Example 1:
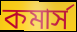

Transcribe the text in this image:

কমার্স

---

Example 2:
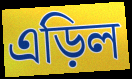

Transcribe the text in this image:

এড়িল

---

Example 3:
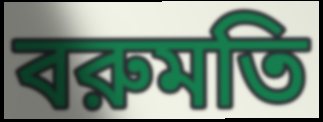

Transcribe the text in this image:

বরুমতি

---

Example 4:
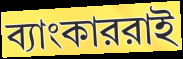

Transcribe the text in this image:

ব্যাংকাররাই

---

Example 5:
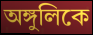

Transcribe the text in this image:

অঙ্গুলিকে